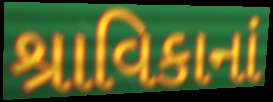
શ્રાવિકાનાં